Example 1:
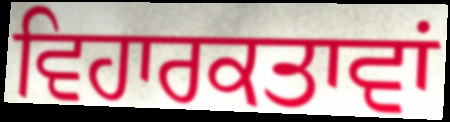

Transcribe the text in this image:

ਵਿਹਾਰਕਤਾਵਾਂ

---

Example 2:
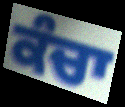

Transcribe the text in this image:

ਕੰਚਾ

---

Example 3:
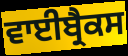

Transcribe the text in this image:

ਵਾਈਬ੍ਰੈਕਸ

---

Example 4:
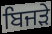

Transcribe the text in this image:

ਬਿਜੜੇ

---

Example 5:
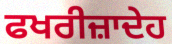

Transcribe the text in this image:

ਫਖਰੀਜ਼ਾਦੇਹ